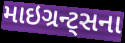
માઇગ્રન્ટ્સના